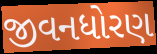
જીવનધોરણ